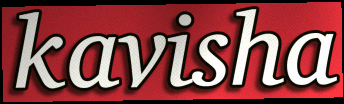
kavisha